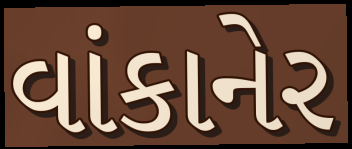
વાંકાનેર